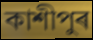
কাশীপুৰ